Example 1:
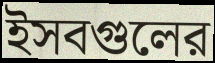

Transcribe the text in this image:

ইসবগুলের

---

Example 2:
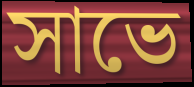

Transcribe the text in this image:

সাভে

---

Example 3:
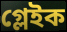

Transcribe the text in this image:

গ্লেইক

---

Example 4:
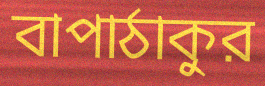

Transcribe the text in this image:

বাপাঠাকুর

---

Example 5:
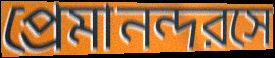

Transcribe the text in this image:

প্রেমানন্দরসে